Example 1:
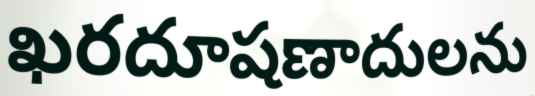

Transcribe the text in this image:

ఖరదూషణాదులను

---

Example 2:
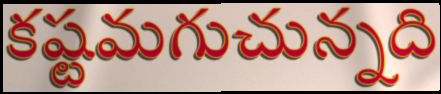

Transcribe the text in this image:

కష్టమగుచున్నది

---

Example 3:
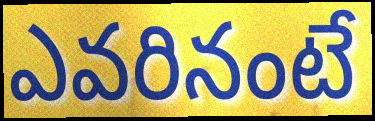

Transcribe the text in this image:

ఎవరినంటే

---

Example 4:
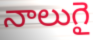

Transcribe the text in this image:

నాలుగై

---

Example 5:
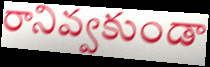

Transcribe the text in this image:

రానివ్వకుండా